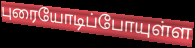
புரையோடிப்போயுள்ள